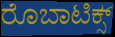
ರೊಬಾಟಿಕ್ಸ್